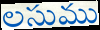
లసుము